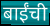
बाईंची